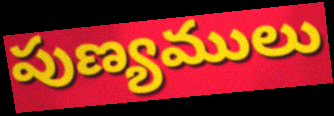
పుణ్యములు